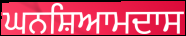
ਘਨਸ਼ਿਆਮਦਾਸ